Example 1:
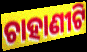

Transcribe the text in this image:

ଚାହାଣୀଟି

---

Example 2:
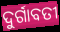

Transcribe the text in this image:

ଦୁର୍ଗାବତୀ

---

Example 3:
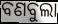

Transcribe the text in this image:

ବଣବୁଲା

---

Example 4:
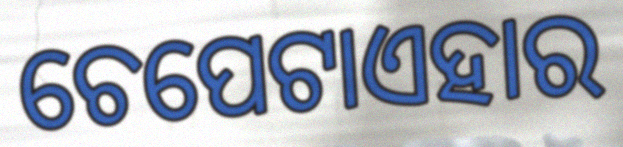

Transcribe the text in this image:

ଚେପେଟାଏହାର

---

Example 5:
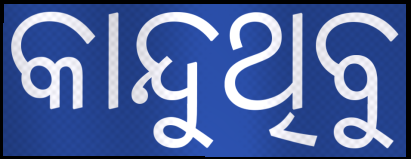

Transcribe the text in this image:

କାନ୍ଦୁଥିବୁ